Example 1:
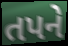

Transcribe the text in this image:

તપને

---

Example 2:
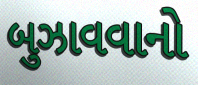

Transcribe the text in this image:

બુઝાવવાનો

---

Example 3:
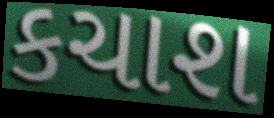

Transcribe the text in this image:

કચાશ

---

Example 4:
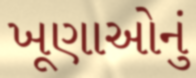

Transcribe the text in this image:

ખૂણાઓનું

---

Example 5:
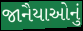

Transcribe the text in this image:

જાનૈયાઓનું